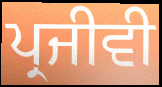
ਪ੍ਰਜੀਵੀ